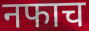
नफाच